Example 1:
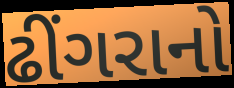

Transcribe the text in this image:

ઢીંગરાનો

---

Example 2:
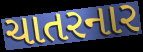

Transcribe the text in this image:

ચાતરનાર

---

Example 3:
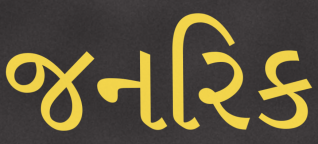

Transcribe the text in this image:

જનરિક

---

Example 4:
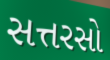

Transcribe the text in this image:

સત્તરસો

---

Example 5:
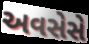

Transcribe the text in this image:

અવસેસે